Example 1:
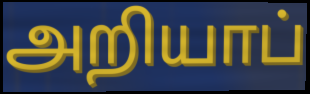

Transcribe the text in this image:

அறியாப்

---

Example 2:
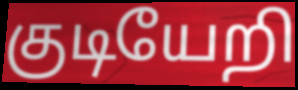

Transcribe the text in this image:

குடியேறி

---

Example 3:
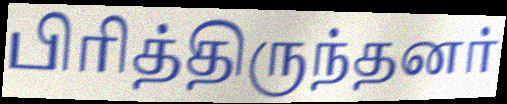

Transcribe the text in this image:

பிரித்திருந்தனர்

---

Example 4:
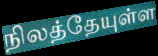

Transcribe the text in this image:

நிலத்தேயுள்ள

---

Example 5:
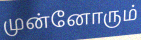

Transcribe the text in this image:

முன்னோரும்